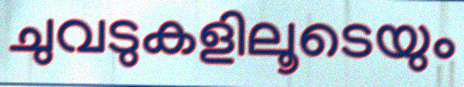
ചുവടുകളിലൂടെയും